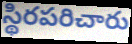
స్థిరపరిచారు